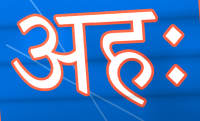
अहः